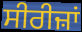
ਸੀਰੀਜ਼ਾਂ